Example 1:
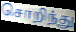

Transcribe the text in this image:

சொறிந்து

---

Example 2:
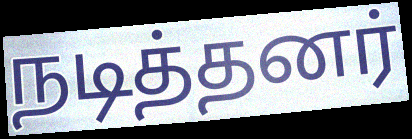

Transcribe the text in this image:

நடித்தனர்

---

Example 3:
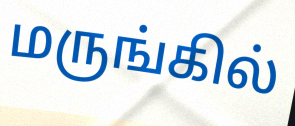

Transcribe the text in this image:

மருங்கில்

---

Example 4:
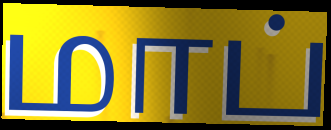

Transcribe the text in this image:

மாப்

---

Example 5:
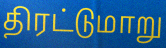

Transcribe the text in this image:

திரட்டுமாறு